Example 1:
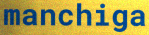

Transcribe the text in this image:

manchiga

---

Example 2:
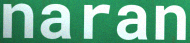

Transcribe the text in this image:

naran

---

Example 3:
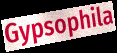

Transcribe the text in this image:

Gypsophila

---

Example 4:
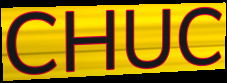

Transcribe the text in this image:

CHUC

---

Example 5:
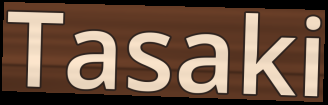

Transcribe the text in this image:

Tasaki